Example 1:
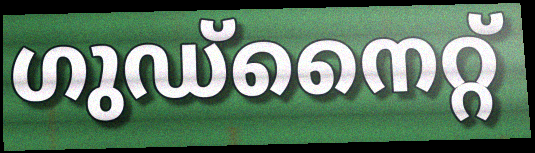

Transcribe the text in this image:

ഗുഡ്നൈറ്റ്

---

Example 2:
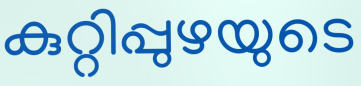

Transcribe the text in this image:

കുറ്റിപ്പുഴയുടെ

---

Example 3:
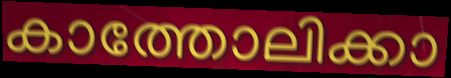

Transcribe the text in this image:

കാത്തോലിക്കാ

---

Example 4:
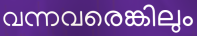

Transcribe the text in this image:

വന്നവരെങ്കിലും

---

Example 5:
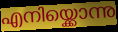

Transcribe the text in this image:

എനിയ്ക്കൊന്നു